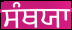
ਸੰਥਯਾ